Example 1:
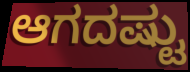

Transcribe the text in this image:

ಆಗದಷ್ಟು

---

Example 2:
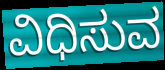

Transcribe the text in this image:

ವಿಧಿಸುವ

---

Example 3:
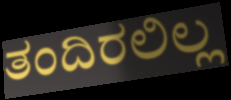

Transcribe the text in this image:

ತಂದಿರಲಿಲ್ಲ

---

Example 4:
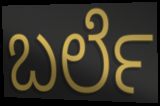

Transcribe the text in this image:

ಬರ್ಲೆ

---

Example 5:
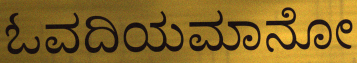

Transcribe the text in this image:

ಓವದಿಯಮಾನೋ